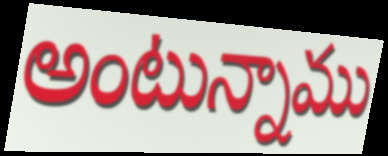
అంటున్నాము